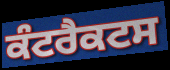
ਕੰਟਰੈਕਟਸ